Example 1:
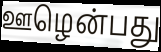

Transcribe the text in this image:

ஊழென்பது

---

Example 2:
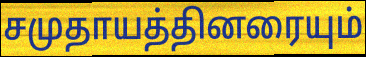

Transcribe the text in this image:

சமுதாயத்தினரையும்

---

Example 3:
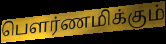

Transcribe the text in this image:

பௌர்ணமிக்கும்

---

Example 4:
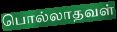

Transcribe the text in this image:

பொல்லாதவள்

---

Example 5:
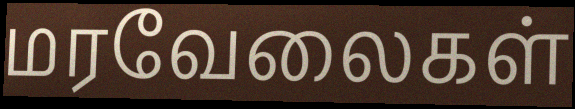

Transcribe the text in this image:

மரவேலைகள்